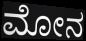
ಮೋನ